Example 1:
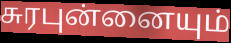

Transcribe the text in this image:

சுரபுன்னையும்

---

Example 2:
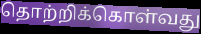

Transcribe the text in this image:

தொற்றிக்கொள்வது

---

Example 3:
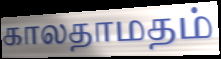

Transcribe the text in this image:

காலதாமதம்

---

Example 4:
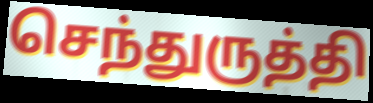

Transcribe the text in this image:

செந்துருத்தி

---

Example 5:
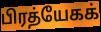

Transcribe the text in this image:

பிரத்யேகக்